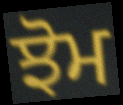
ਝੋਮ